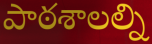
పాఠశాలల్ని